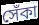
সেঁকা